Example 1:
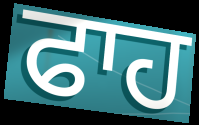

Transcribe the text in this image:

ਫਾਹ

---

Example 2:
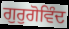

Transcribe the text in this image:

ਗੁਰੁਗੋਵਿੰਦ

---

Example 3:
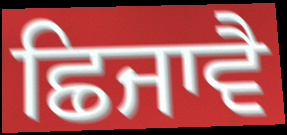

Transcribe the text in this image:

ਛਿਜਾਵੈ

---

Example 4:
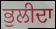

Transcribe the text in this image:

ਭੁਲੀਦਾ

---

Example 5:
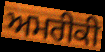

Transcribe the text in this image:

ਅਮਰੀਕੀ